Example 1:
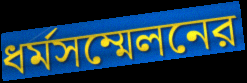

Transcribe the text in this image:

ধর্মসম্মেলনের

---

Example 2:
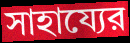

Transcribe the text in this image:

সাহায্য়ের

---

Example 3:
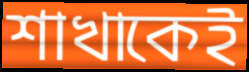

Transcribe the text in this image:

শাখাকেই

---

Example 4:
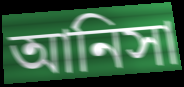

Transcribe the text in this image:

আনিসা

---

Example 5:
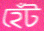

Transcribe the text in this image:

হেঁট